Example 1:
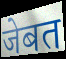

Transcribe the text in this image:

जेबत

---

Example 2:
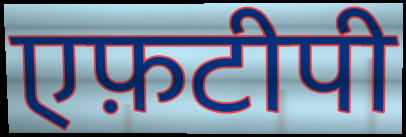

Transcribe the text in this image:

एफ़टीपी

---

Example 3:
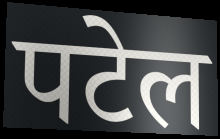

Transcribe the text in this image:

पटेल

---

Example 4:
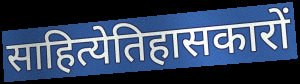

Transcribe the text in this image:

साहित्येतिहासकारों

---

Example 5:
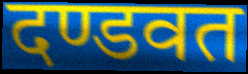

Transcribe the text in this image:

दण्‍डवत